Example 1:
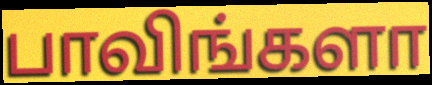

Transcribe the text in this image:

பாவிங்களா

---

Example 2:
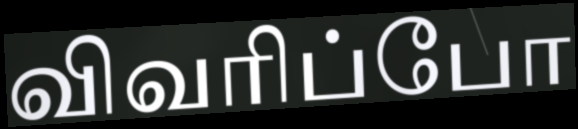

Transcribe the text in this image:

விவரிப்போ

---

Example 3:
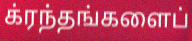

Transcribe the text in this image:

க்ரந்தங்களைப்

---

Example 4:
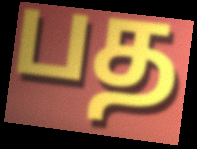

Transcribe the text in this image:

பத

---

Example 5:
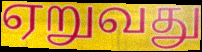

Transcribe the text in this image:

ஏறுவது